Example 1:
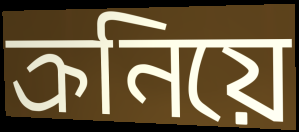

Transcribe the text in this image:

ক্রনিয়ে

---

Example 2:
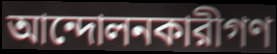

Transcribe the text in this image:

আন্দোলনকারীগণ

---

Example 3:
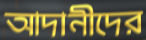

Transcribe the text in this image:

আদানীদের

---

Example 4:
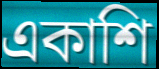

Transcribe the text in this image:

একাশি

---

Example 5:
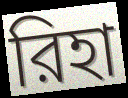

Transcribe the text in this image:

রিহা